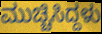
ಮುಚ್ಚಿಸಿದ್ದಳು